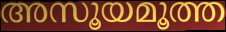
അസൂയമൂത്ത